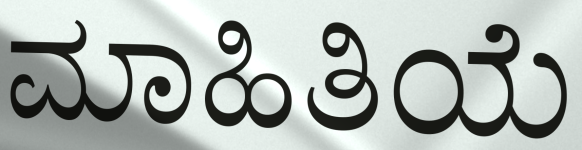
ಮಾಹಿತಿಯೆ